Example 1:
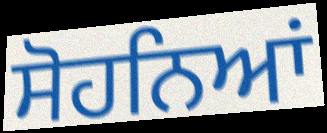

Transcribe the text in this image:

ਸੋਹਨਿਆਂ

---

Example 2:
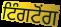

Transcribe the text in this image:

ਟਿੰਗਟੋਂਗ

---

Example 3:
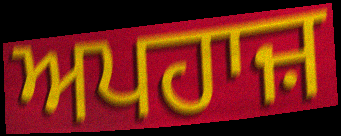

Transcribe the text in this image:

ਅਪਹਾਜ਼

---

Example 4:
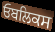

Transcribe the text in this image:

ਓਬਲਿਕਸ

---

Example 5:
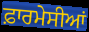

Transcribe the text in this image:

ਫ਼ਾਰਮੇਸੀਆਂ